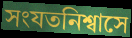
সংযতনিশ্বাসে